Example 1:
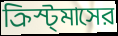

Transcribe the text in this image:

ক্রিস্ট্‌মাসের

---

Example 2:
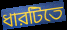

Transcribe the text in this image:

ধারটিতে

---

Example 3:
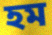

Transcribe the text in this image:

হম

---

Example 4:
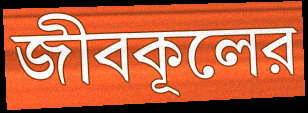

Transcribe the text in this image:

জীবকূলের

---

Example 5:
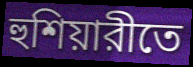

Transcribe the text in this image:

হুশিয়ারীতে